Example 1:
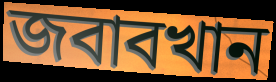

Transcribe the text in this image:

জবাবখান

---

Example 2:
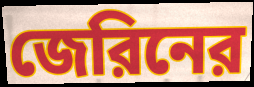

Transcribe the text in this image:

জেরিনের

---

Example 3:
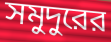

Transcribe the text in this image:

সমুদুরের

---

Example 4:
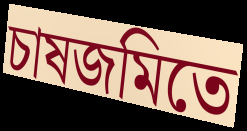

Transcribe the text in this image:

চাষজমিতে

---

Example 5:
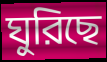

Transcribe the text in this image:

ঘুরিছে